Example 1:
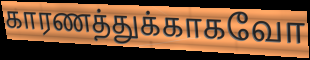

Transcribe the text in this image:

காரணத்துக்காகவோ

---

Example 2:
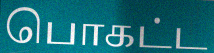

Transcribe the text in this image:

பொகட்ட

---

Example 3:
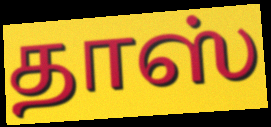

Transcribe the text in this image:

தாஸ்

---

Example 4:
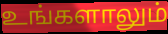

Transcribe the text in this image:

உங்களாலும்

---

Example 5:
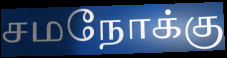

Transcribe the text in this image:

சமநோக்கு